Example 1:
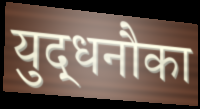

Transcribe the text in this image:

युद्धनौका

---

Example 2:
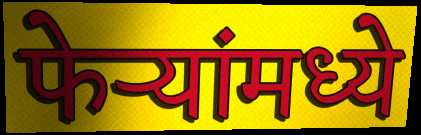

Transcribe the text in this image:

फेऱ्यांमध्ये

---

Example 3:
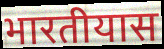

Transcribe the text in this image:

भारतीयास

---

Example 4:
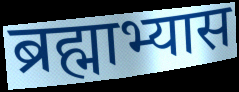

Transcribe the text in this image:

ब्रह्माभ्यास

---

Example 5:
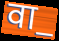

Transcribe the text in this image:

वा॒